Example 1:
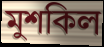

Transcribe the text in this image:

মুশকিল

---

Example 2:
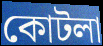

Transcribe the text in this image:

কোটলা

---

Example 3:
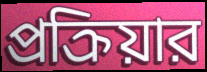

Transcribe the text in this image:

প্রক্রিয়ার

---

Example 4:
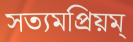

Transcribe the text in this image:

সত্যমপ্রিয়ম্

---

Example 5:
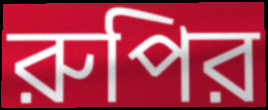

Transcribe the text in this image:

রুপির